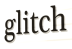
glitch